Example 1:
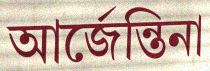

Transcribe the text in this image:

আর্জেন্তিনা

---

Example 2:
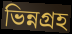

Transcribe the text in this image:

ভিন্নগ্রহ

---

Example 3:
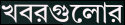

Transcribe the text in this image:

খবরগুলোর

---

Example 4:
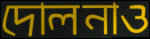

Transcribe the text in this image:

দোলনাও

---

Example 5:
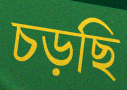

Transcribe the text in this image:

চড়ছি